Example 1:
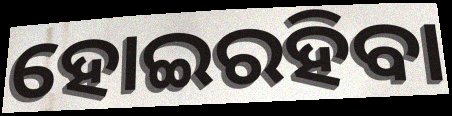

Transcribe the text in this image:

ହୋଇରହିବା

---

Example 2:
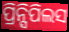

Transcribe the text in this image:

ପ୍ରିନ୍ସିପିଲସ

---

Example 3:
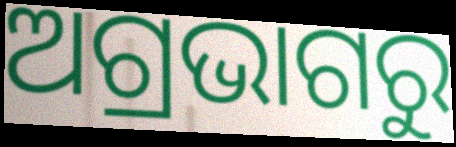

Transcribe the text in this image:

ଅଗ୍ରଭାଗରୁ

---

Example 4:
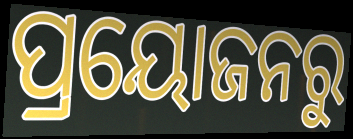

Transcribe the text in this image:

ପ୍ରୟୋଜନରୁ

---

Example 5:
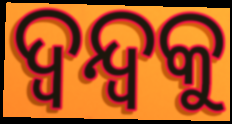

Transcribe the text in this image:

ଦ୍ୱନ୍ଦ୍ୱକୁ